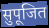
सुपूजित